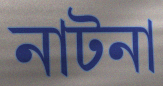
নাটনা